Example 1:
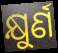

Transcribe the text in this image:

କ୍ଷୁର୍ଣ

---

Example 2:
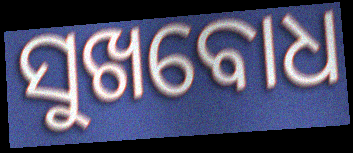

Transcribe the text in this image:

ସୁଖବୋଧ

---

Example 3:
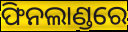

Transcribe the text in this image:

ଫିନଲାଣ୍ଡରେ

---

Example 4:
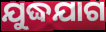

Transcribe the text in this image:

ଯୁଦ୍ଧଯାଗ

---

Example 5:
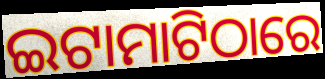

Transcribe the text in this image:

ଇଟାମାଟିଠାରେ